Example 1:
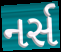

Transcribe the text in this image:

નર્સ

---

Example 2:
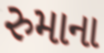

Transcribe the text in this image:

રુમાના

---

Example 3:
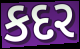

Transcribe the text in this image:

કદર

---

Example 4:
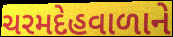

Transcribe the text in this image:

ચરમદેહવાળાને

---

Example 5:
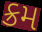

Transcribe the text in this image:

ક્રમ